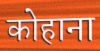
कोहाना